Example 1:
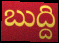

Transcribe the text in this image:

బుద్ది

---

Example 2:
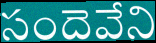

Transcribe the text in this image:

సందెవేని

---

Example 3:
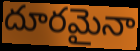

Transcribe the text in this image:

దూరమైనా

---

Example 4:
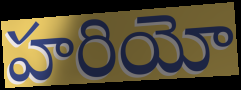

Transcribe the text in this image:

హరియో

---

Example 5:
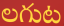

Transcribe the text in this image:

లగుట